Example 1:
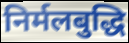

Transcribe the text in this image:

निर्मलबुद्धि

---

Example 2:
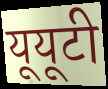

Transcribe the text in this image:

यूयूटी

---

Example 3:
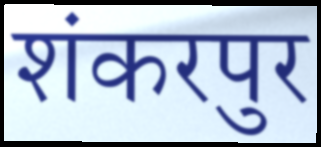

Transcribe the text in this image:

शंकरपुर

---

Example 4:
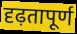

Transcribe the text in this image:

दृढ़तापूर्ण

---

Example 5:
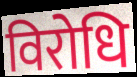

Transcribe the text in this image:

विरोधि